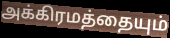
அக்கிரமத்தையும்